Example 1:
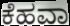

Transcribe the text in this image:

ಕೆಹವಾ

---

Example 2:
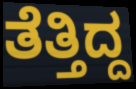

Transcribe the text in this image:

ತೆತ್ತಿದ್ದ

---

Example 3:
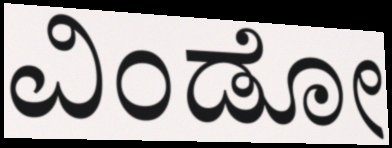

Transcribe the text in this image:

ವಿಂಡೋ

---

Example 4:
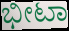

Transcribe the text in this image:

ಭೀಟಾ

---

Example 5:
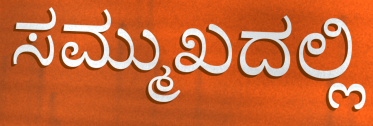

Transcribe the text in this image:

ಸಮ್ಮುಖದಲ್ಲಿ